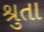
શ્રુતા